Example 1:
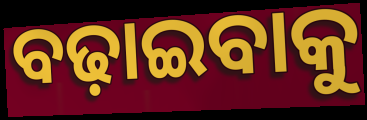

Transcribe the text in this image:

ବଢ଼ାଇବାକୁ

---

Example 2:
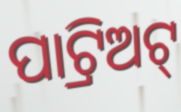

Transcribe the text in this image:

ପାଟ୍ରିଅଟ୍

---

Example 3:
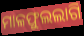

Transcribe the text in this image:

ମାଳଫୁଲଲାଗି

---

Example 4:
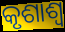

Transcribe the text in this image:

କୃଶାଶ୍ୱ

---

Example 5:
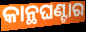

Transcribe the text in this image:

କାନ୍ଥଘଣ୍ଟାର